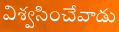
విశ్వసించేవాడు